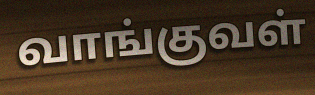
வாங்குவள்